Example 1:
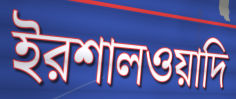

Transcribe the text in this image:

ইরশালওয়াদি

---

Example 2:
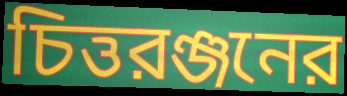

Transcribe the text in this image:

চিত্তরঞ্জনের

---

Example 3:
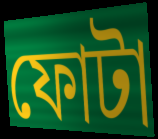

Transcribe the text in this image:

ফোটা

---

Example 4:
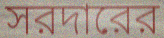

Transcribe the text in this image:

সরদারের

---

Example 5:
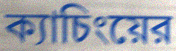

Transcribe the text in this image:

ক্যাচিংয়ের